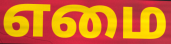
எமை